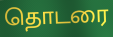
தொடரை